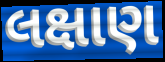
લક્ષાણ